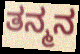
ತನ್ಮನ